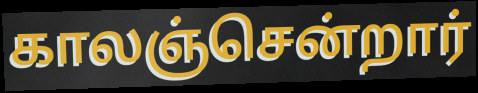
காலஞ்சென்றார்